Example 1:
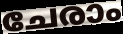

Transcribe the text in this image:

ചേരാം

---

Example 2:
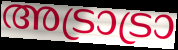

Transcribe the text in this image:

അട്രാട്രാ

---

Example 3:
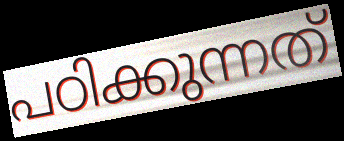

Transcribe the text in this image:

പഠിക്കുന്നത്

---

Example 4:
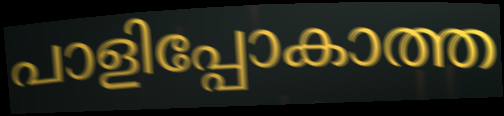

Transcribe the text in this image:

പാളിപ്പോകാത്ത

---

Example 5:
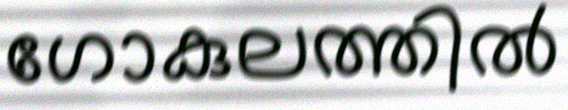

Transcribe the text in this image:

ഗോകുലത്തിൽ